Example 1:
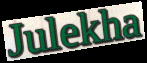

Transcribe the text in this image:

Julekha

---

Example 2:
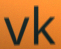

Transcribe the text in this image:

vk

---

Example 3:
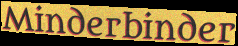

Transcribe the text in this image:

Minderbinder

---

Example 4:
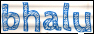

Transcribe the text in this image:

bhalu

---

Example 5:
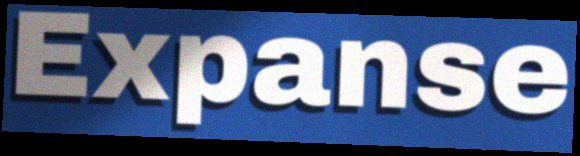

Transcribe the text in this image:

Expanse